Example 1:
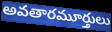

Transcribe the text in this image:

అవతారమూర్తులు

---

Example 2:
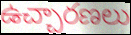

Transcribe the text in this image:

ఉచ్చారణలు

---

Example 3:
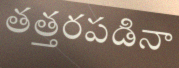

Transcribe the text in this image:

తత్తరపడినా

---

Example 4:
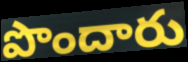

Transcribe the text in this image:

పొందారు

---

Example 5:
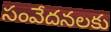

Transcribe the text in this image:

సంవేదనలకు